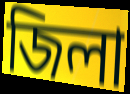
জিলা